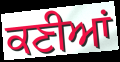
ਕਣੀਆਂ